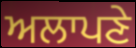
ਅਲਾਪਣੇ